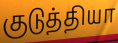
குடுத்தியா